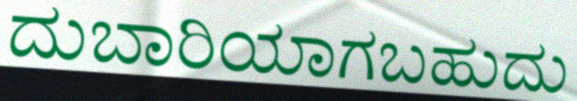
ದುಬಾರಿಯಾಗಬಹುದು